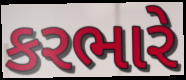
કરભારે